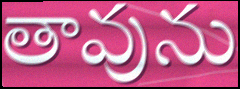
తావును